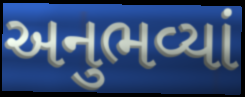
અનુભવ્યાં